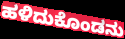
ಹಳಿದುಕೊಂಡನು